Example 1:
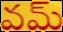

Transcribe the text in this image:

వమ్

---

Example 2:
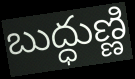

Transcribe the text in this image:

బుద్ధుణ్ణి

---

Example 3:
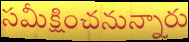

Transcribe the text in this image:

సమీక్షించనున్నారు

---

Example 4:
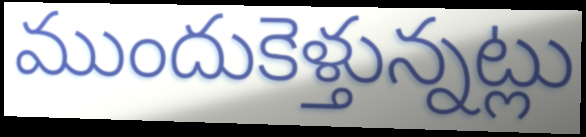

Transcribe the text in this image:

ముందుకెళ్తున్నట్లు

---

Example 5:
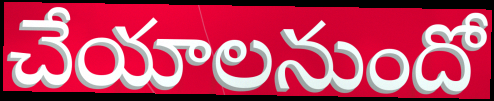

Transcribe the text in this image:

చేయాలనుందో